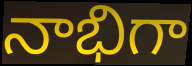
నాభిగా